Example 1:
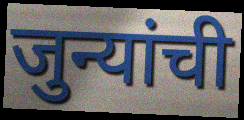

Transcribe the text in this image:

जुन्यांची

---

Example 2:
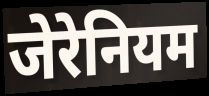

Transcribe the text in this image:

जेरेनियम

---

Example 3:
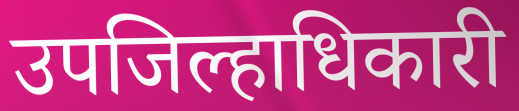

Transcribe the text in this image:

उपजिल्हाधिकारी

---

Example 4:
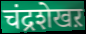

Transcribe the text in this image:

चंद्रशेखऱ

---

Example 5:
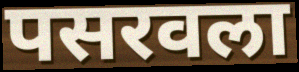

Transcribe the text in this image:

पसरवला